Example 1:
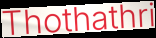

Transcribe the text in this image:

Thothathri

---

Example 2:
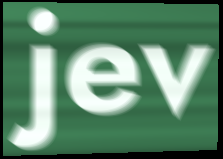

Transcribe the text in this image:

jev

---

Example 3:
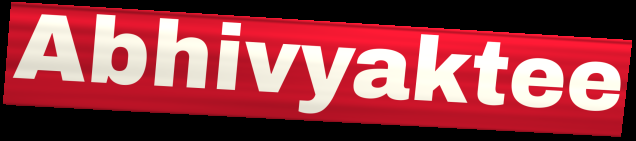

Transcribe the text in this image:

Abhivyaktee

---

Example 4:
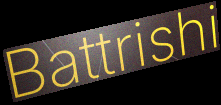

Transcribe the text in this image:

Battrishi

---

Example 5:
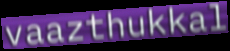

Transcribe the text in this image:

vaazthukkal